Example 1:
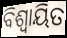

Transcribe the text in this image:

ବିଶ୍ବାୟିତ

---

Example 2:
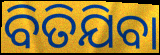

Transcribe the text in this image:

ବିତିଯିବା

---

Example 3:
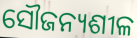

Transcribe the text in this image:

ସୌଜନ୍ୟଶୀଳ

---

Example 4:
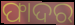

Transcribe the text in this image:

ଫାଦର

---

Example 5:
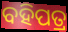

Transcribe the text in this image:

ବହିପତ୍ର